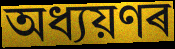
অধ্যয়ণৰ